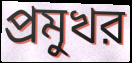
প্রমুখর